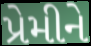
પ્રેમીને